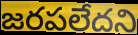
జరపలేదని